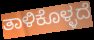
ತಾಳಿಕೊಳ್ಳದೆ